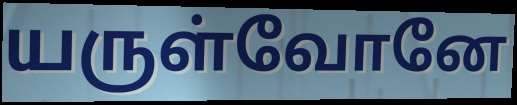
யருள்வோனே